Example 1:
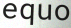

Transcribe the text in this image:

equo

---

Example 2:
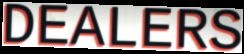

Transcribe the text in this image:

DEALERS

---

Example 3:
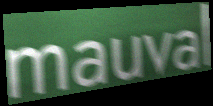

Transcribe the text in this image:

mauval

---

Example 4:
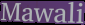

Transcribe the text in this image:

Mawali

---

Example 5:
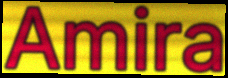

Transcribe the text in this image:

Amira